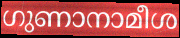
ഗുണാനാമീശ